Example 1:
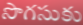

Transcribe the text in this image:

సొగసుకు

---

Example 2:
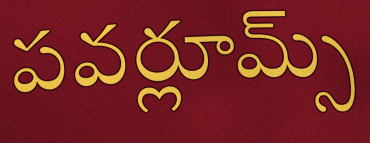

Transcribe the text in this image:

పవర్లూమ్స్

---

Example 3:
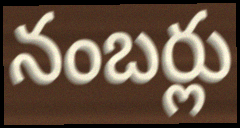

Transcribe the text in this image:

నంబర్లు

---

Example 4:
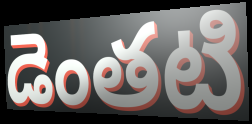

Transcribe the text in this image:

డెంతటి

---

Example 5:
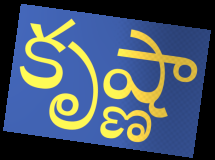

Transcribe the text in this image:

కృష్ణా